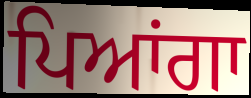
ਪਿਆਂਗਾ